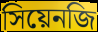
সিয়েনজি